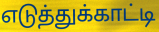
எடுத்துக்காட்டி